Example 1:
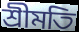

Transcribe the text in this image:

শ্রীমতি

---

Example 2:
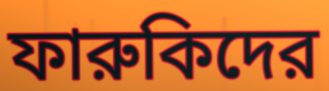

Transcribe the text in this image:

ফারুকিদের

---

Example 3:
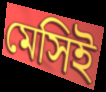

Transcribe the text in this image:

মেসিই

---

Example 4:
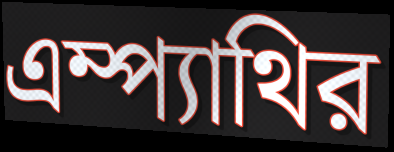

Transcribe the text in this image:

এম্প্যাথির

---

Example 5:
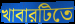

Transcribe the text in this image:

খাবারটিতে